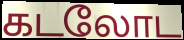
கடலோட